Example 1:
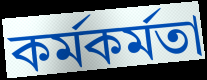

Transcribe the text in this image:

কর্মকর্মতা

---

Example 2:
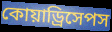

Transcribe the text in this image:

কোয়াড্রিসেপস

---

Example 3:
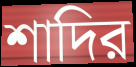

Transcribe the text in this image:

শাদির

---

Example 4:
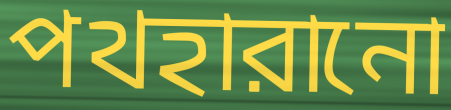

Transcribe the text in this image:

পথহারানো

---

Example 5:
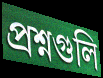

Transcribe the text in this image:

প্রশ্নগুলি